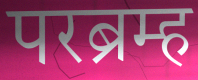
परब्रम्ह